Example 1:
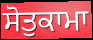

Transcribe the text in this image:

ਸੋਤੁਕਾਮਾ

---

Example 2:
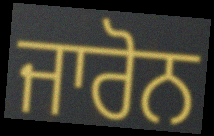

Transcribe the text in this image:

ਜਾਰੋਨ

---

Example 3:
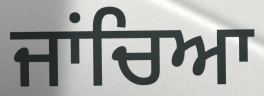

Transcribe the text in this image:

ਜਾਂਚਿਆ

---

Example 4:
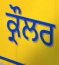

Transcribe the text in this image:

ਕ੍ਰੌਲਰ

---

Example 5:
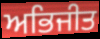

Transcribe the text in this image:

ਅਭਿਜੀਤ